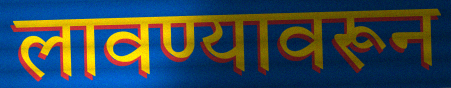
लावण्यावरून